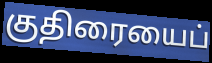
குதிரையைப்